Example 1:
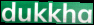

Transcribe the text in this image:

dukkha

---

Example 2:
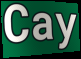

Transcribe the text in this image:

Cay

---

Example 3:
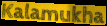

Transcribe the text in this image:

Kalamukha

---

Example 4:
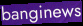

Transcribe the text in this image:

banginews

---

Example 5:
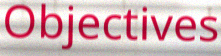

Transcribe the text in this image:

Objectives